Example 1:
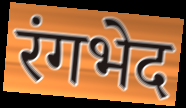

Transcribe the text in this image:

रंगभेद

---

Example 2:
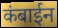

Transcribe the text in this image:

कंबाईन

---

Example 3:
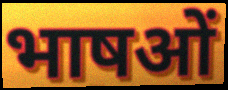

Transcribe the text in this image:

भाषओं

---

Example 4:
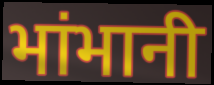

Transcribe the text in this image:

भांभानी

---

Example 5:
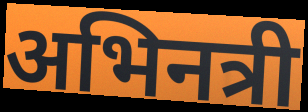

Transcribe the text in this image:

अभिनत्री